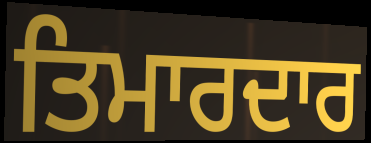
ਤਿਮਾਰਦਾਰ